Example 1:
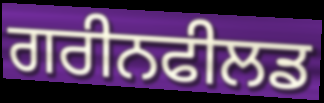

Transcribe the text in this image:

ਗਰੀਨਫੀਲਡ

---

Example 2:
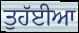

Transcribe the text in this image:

ਤੁਹੱਈਆ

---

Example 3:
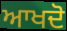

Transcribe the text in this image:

ਆਖਦੋ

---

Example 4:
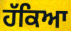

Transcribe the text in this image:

ਹੱਕਿਆ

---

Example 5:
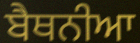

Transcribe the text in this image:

ਬੈਥਨੀਆ